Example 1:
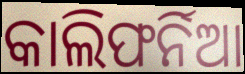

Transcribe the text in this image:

କାଲିଫର୍ନିଆ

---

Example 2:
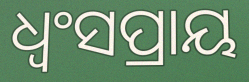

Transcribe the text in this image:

ଧ୍ୱଂସପ୍ରାୟ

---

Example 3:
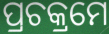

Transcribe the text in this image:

ପ୍ରଚକ୍ରମେ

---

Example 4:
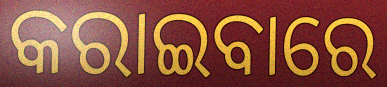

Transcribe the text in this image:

କରାଇବାରେ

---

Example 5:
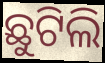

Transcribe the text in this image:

ଛୁଟିଲି